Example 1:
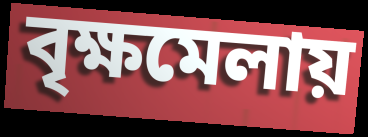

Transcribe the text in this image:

বৃক্ষমেলায়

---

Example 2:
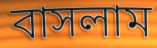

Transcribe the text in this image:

বাসলাম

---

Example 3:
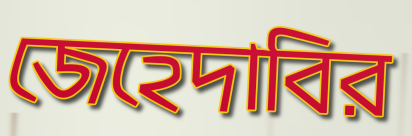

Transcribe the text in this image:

জেহেদাবির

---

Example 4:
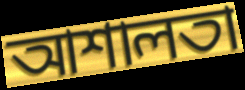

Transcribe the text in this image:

আশালতা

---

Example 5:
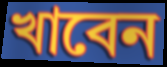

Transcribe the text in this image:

খাবেন